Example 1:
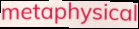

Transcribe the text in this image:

metaphysical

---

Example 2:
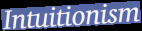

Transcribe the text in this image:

Intuitionism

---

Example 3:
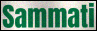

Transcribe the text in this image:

Sammati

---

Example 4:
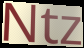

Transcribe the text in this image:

Ntz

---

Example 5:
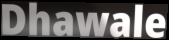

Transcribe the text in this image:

Dhawale